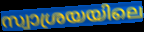
സ്വാശ്രയയിലെ